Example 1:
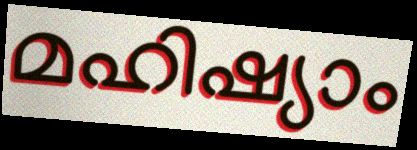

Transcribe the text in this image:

മഹിഷ്യാം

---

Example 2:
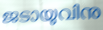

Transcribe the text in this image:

ജടായുവിനു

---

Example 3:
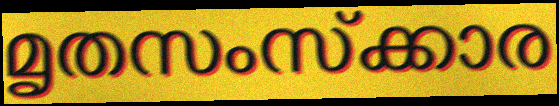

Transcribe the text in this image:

മൃതസംസ്‌ക്കാര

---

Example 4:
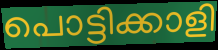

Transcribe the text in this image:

പൊട്ടിക്കാളി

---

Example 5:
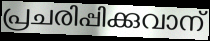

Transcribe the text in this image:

പ്രചരിപ്പിക്കുവാന്